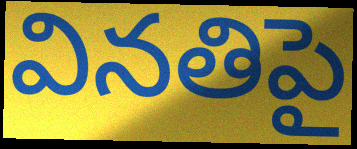
వినతిపై